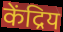
केंद्रिय